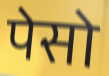
पेसो